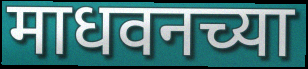
माधवनच्या